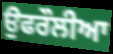
ਉਫਰੌਲੀਆ